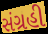
સંગ્રહી